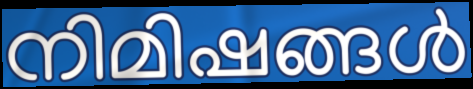
നിമിഷങ്ങൾ